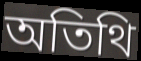
অতিথি